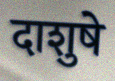
दाशुषे